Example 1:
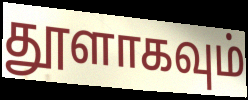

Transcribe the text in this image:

தூளாகவும்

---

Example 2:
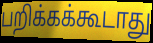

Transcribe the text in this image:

பறிக்கக்கூடாது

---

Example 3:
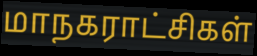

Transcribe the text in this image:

மாநகராட்சிகள்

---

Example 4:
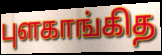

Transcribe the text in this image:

புளகாங்கித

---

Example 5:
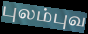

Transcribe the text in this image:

புலம்புவ